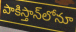
పాకిస్తాన్‌లోనూ